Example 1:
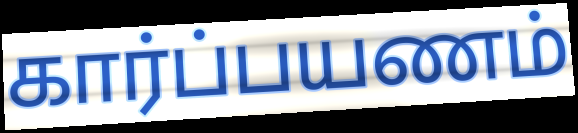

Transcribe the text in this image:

கார்ப்பயணம்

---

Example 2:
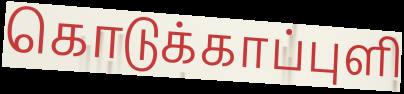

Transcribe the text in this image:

கொடுக்காப்புளி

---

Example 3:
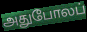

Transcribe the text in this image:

அதுபோலப்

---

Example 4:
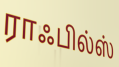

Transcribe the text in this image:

ராஃபில்ஸ்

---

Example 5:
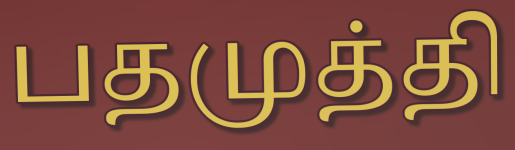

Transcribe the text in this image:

பதமுத்தி